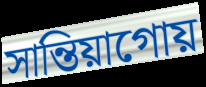
সান্তিয়াগোয়